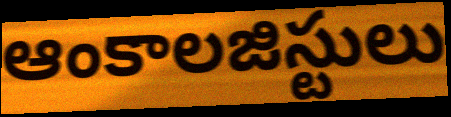
ఆంకాలజిస్టులు